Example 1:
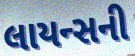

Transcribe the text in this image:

લાયન્સની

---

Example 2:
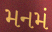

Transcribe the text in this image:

મનમં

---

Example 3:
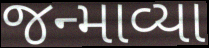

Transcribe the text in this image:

જન્માવ્યા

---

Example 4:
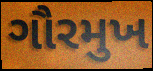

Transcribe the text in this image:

ગૌરમુખ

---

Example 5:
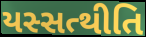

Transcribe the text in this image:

યસ્સત્થીતિ